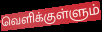
வெளிக்குள்ளும்